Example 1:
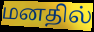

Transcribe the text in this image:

மனதில்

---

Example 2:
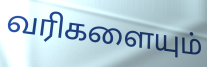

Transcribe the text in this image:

வரிகளையும்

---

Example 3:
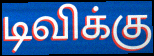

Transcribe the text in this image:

டிவிக்கு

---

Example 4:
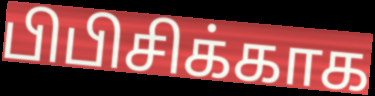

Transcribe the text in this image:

பிபிசிக்காக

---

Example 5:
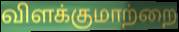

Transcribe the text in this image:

விளக்குமாற்றை